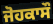
ਜੋਹਕਾਸੌ